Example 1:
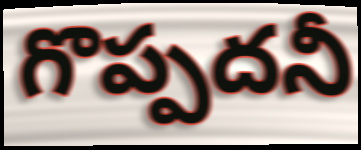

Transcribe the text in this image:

గొప్పదనీ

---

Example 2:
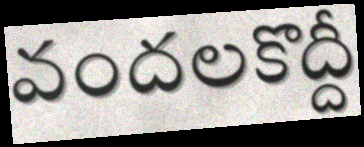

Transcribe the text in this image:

వందలకొద్దీ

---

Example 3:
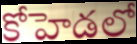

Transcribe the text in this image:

కోహెడలో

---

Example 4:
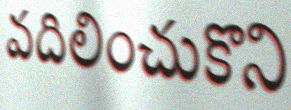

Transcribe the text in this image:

వదిలించుకొని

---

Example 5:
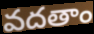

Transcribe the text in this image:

వదతాం